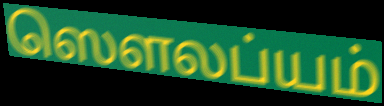
ஸௌலப்யம்